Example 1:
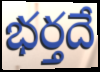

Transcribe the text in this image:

భర్తదే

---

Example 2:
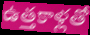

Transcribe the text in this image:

ఉత్తకాళ్లతో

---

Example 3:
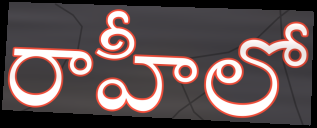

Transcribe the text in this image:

రాహీలో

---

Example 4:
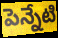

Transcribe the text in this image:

పెన్నేటి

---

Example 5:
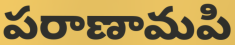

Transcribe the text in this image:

పరాణామపి